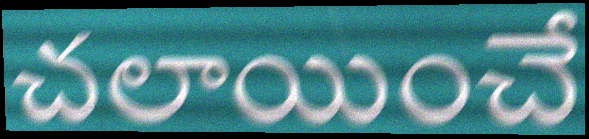
చలాయించే